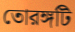
তোরঙ্গটি